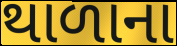
થાળાના